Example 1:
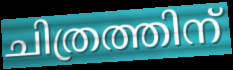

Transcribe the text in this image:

ചിത്രത്തിന്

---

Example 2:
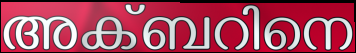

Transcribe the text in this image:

അക്ബറിനെ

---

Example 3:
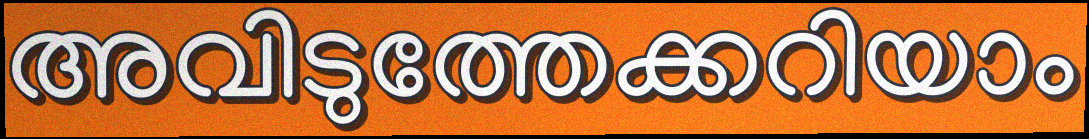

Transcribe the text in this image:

അവിടുത്തേക്കറിയാം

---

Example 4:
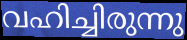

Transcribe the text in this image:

വഹിച്ചിരുന്നു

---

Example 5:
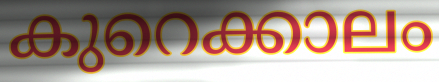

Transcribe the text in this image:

കുറെക്കാലം